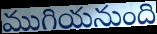
ముగియనుంది